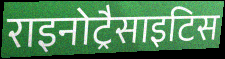
राइनोट्रैसाइटिस